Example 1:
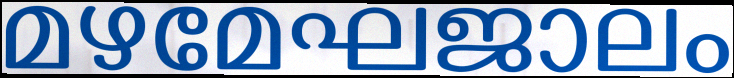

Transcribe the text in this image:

മഴമേഘജാലം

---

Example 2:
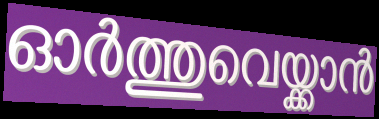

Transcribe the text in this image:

ഓർത്തുവെയ്ക്കാൻ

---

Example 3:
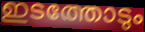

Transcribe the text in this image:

ഇടത്തോടും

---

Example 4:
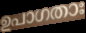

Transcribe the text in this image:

ഉപാഗതാഃ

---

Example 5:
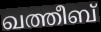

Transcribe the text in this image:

ഖത്തീബ്